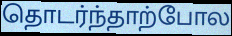
தொடர்ந்தாற்போல